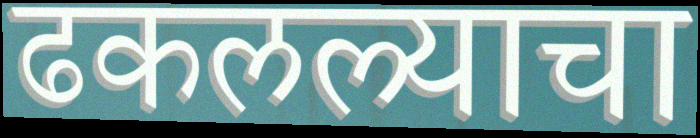
ढकलल्याचा